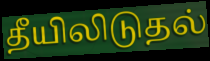
தீயிலிடுதல்